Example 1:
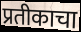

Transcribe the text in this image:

प्रतीकाचा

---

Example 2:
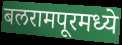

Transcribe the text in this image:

बलरामपूरमध्ये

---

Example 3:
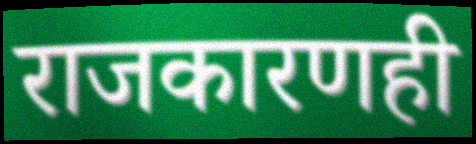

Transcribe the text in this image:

राजकारणही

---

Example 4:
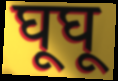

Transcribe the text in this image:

घूघू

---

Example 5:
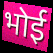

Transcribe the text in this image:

भोई